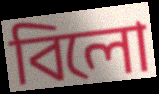
বিলো